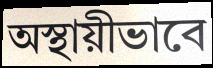
অস্থায়ীভাবে